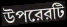
উপরেরটি